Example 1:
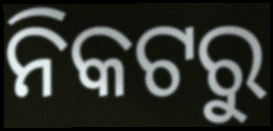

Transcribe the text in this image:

ନିକଟରୁ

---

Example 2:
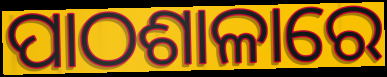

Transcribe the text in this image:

ପାଠଶାଳାରେ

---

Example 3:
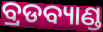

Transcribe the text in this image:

ବ୍ରଡବ୍ୟାଣ୍ଡ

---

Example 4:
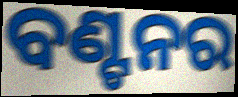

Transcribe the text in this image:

ବଣ୍ଟନର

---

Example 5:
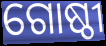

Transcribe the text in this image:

ଗୋଷ୍ଠୀ